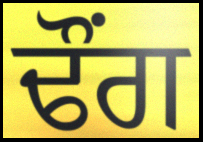
ਢੌਂਗ